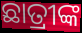
ଛାତ୍ରୀଙ୍କ